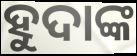
ହୁଦାଙ୍କ